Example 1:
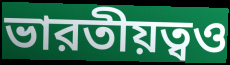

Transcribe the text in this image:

ভারতীয়ত্বও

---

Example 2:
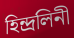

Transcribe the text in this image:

হিন্দ্রলিনী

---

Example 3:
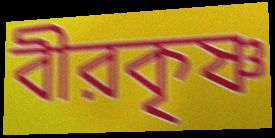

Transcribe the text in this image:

বীরকৃষ্ণ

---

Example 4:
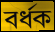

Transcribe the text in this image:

বর্ধক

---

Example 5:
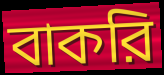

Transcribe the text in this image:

বাকরি